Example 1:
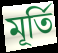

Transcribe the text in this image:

মূর্তি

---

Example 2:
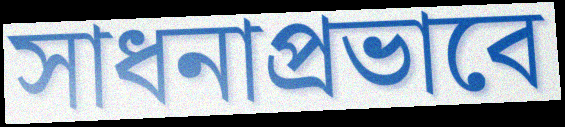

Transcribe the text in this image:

সাধনাপ্রভাবে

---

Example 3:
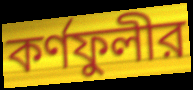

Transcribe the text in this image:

কর্ণফুলীর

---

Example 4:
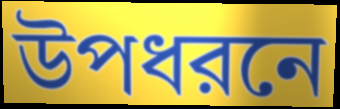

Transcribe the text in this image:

উপধরনে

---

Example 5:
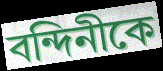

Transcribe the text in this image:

বন্দিনীকে